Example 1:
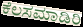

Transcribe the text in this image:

ಕೆಲಸಮಾಡಿರಿ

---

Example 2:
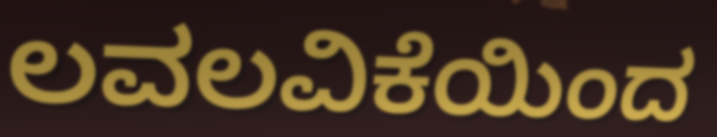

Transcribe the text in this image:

ಲವಲವಿಕೆಯಿಂದ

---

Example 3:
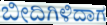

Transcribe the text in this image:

ಬೀದಿಗಿಳಿದಾಗ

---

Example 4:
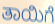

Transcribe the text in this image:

ತಾಯಿಗೆ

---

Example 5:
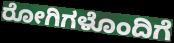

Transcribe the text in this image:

ರೋಗಿಗಳೊಂದಿಗೆ